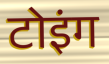
टोइंग